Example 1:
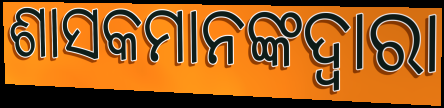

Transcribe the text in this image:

ଶାସକମାନଙ୍କଦ୍ୱାରା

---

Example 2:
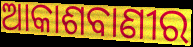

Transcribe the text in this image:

ଆକାଶବାଣୀର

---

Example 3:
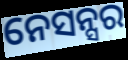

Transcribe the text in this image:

ନେସନ୍ସର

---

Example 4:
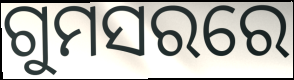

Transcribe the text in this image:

ଗୁମସରରେ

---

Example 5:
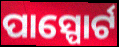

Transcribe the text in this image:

ପାସ୍ପୋର୍ଟ